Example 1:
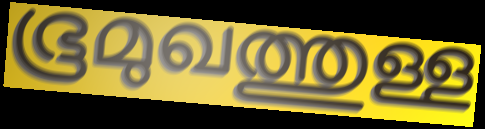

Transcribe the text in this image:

ഭൂമുഖത്തുള്ള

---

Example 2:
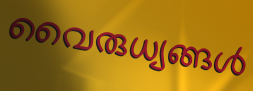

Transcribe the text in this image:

വൈരുധ്യങ്ങൾ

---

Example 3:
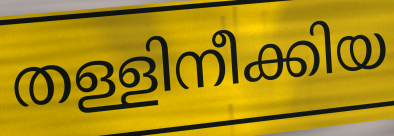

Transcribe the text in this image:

തള്ളിനീക്കിയ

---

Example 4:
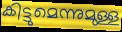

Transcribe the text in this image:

കിട്ടുമെന്നുമുള്ള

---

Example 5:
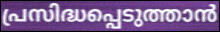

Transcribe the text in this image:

പ്രസിദ്ധപ്പെടുത്താൻ